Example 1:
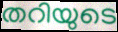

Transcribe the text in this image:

തറിയുടെ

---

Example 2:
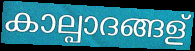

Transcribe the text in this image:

കാല്പാദങ്ങള്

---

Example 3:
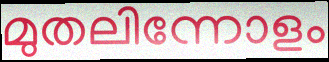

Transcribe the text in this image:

മുതലിന്നോളം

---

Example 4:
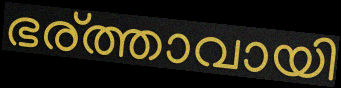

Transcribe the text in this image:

ഭര്ത്താവായി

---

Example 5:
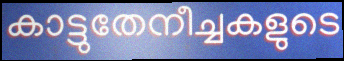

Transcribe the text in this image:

കാട്ടുതേനീച്ചകളുടെ